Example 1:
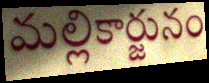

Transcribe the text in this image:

మల్లికార్జునం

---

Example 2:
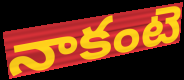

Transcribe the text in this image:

నాకంటె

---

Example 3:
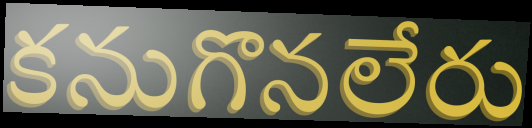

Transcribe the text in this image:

కనుగొనలేరు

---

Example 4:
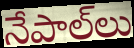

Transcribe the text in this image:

నేపాల్‌లు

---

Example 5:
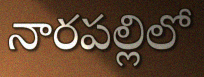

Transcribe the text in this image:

నారపల్లిలో